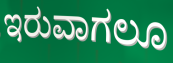
ಇರುವಾಗಲೂ